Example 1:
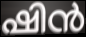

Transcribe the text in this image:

ഷിൻ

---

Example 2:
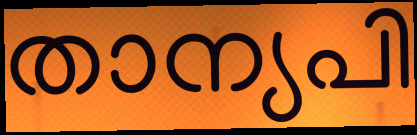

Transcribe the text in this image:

താന്യപി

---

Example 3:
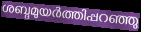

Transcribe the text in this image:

ശബ്ദമുയർത്തിപ്പറഞ്ഞു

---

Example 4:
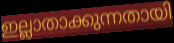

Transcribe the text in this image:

ഇല്ലാതാക്കുന്നതായി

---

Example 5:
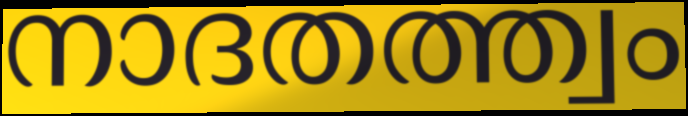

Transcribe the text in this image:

നാദതത്ത്വം